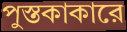
পুস্তকাকারে